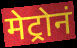
मेट्रोनं